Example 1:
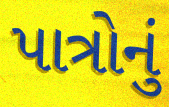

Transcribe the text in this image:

પાત્રોનું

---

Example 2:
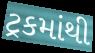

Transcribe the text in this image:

ટ્રકમાંથી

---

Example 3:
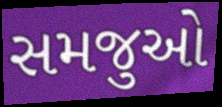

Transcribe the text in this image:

સમજુઓ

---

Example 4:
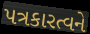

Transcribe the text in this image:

પત્રકારત્વને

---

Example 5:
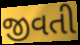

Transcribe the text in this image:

જીવતી